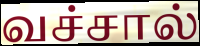
வச்சால்